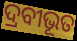
ଦ୍ରବୀଭୂତ